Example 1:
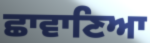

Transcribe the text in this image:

ਛਾਵਾਣਿਆ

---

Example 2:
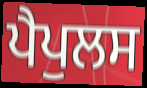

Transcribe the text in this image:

ਪੈਪੁਲਸ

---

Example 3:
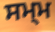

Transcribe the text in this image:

ਸਮ੍ਮ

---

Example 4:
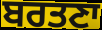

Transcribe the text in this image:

ਬਰਤਣਾ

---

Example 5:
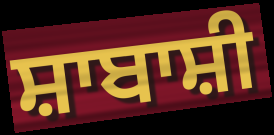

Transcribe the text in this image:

ਸ਼ਾਬਾਸ਼ੀ